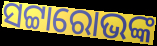
ସଟ୍ଟାରୋଭଙ୍କ